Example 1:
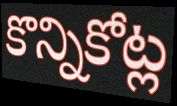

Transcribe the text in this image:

కొన్నికోట్ల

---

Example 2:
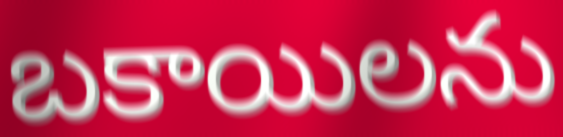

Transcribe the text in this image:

బకాయిలను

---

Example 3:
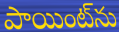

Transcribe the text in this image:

పాయింట్‌ను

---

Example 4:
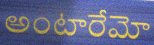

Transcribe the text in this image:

అంటారేమో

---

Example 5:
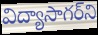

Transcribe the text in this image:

విద్యాసాగర్‌ని